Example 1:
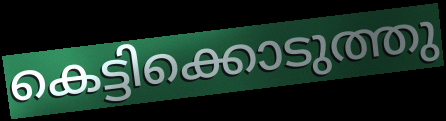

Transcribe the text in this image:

കെട്ടിക്കൊടുത്തു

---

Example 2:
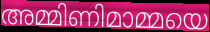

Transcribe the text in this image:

അമ്മിണിമാമ്മയെ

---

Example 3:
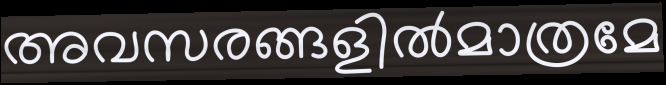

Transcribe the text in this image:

അവസരങ്ങളിൽമാത്രമേ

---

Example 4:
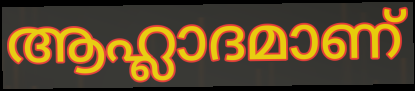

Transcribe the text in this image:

ആഹ്ലാദമാണ്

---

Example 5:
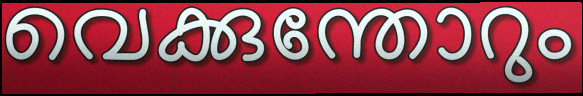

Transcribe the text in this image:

വെക്കുന്തോറും